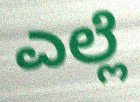
ಎಲ್ಲೆ